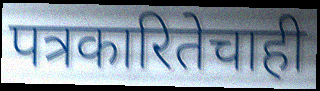
पत्रकारितेचाही